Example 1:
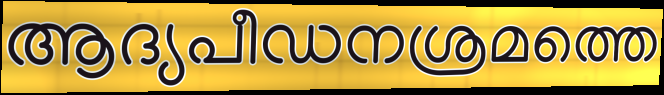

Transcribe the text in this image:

ആദ്യപീഡനശ്രമത്തെ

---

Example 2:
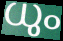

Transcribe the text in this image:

ധും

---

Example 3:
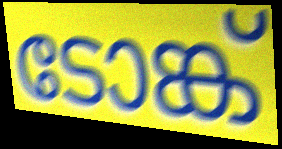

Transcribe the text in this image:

ടോങ്ക്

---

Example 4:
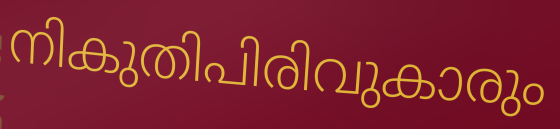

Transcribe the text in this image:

നികുതിപിരിവുകാരും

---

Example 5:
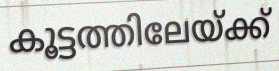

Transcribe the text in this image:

കൂട്ടത്തിലേയ്ക്ക്